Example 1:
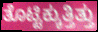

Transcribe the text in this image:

ತೊಟ್ಟಿಕ್ಕುತ್ತಿತ್ತು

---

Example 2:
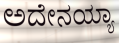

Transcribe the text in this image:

ಅದೇನಯ್ಯಾ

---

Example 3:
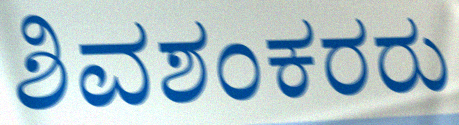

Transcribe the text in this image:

ಶಿವಶಂಕರರು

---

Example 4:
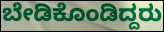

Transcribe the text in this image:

ಬೇಡಿಕೊಂಡಿದ್ದರು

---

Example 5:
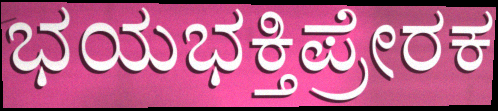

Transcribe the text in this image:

ಭಯಭಕ್ತಿಪ್ರೇರಕ